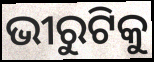
ଭୀରୁଟିକୁ